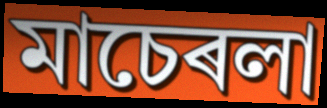
মাচেৰলা